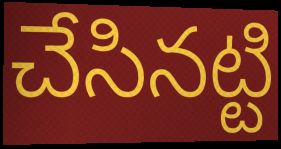
చేసినట్టి